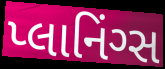
પ્લાનિંગ્સ